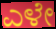
ಎಳೇ